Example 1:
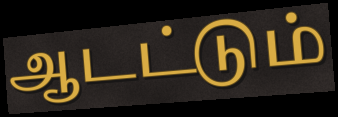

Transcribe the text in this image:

ஆடட்டும்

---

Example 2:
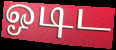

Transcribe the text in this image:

ஓடிட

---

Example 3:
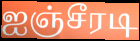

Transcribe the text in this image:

ஐஞ்சீரடி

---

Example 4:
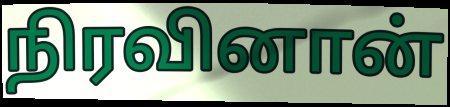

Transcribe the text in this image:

நிரவினான்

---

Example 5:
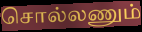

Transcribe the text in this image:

சொல்லணும்